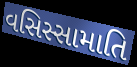
વસિસ્સામાતિ